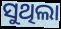
ସୁଥିଲା